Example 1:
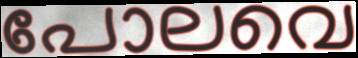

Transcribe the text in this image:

പോലവെ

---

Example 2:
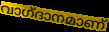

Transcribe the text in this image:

വാഗ്‌ദാനമാണ്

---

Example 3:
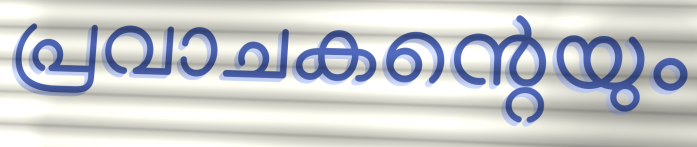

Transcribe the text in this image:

പ്രവാചകന്റെയും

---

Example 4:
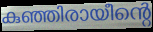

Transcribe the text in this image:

കുഞ്ഞിരായീന്റെ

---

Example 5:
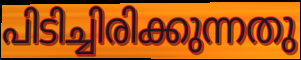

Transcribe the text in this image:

പിടിച്ചിരിക്കുന്നതു